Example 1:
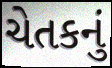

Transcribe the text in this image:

ચેતકનું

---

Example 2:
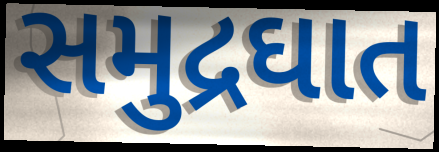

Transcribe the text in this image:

સમુદ્રઘાત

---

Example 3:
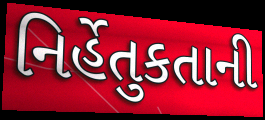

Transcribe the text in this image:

નિર્હેતુકતાની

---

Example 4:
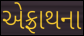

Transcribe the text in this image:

એફ્રાથના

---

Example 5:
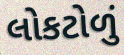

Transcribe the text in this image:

લોકટોળું